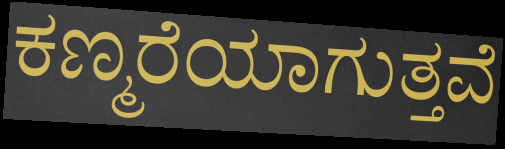
ಕಣ್ಮರೆಯಾಗುತ್ತವೆ